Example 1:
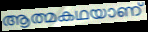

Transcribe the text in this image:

ആത്മകഥയാണ്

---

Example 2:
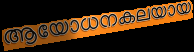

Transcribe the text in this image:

ആയോധനകലയായ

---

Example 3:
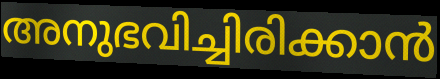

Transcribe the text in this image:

അനുഭവിച്ചിരിക്കാൻ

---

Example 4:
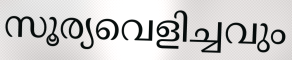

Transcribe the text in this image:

സൂര്യവെളിച്ചവും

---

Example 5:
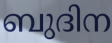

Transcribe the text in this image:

ബുദിന